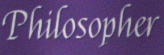
Philosopher